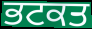
ਭਟਕਤ